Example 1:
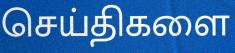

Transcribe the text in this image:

செய்திகளை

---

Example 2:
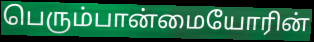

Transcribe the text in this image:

பெரும்பான்மையோரின்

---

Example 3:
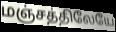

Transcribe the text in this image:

மஞ்சத்திலேயே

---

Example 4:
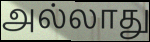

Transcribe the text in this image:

அல்லாது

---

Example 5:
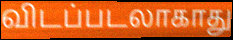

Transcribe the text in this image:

விடப்படலாகாது